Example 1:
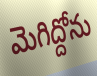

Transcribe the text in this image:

మెగిద్దోను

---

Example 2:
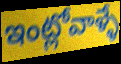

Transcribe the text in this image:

ఇంట్లోవాళ్ళే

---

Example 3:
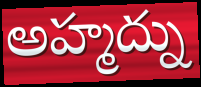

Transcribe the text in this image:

అహ్మద్ను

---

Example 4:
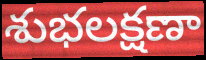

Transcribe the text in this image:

శుభలక్షణా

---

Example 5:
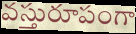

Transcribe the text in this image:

వస్తురూపంగా